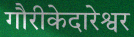
गौरीकेदारेश्वर